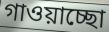
গাওয়াচ্ছো